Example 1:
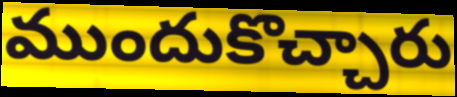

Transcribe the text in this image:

ముందుకొచ్చారు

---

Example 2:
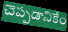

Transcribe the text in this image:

చెప్పడానికేం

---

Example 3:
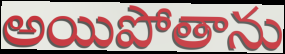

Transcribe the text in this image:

అయిపోతాను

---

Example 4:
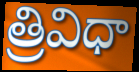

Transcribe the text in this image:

త్రివిధా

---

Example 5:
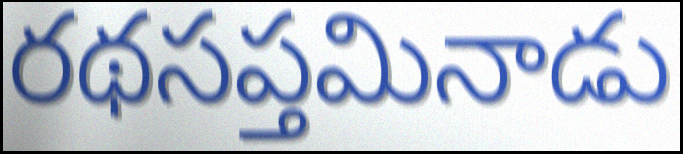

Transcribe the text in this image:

రథసప్తమినాడు